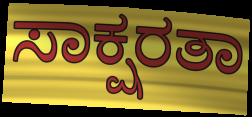
ಸಾಕ್ಷರತಾ